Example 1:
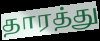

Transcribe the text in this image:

தாரத்து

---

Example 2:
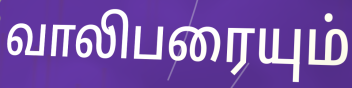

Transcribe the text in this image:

வாலிபரையும்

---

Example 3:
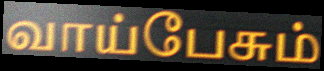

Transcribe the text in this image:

வாய்பேசும்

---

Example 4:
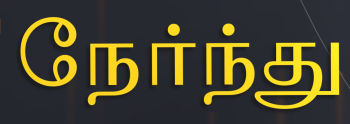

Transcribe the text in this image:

நேர்ந்து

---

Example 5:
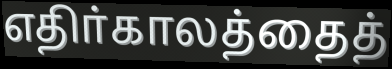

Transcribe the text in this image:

எதிர்காலத்தைத்